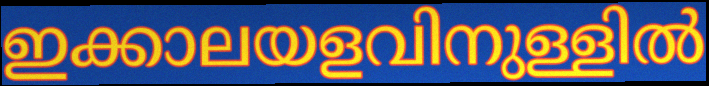
ഇക്കാലയളവിനുള്ളിൽ